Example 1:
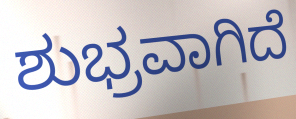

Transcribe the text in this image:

ಶುಭ್ರವಾಗಿದೆ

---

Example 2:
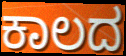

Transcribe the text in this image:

ಕಾಲದ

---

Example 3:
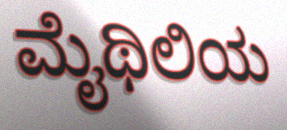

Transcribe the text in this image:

ಮೈಥಿಲಿಯ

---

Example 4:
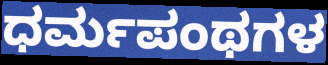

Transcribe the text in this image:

ಧರ್ಮಪಂಥಗಳ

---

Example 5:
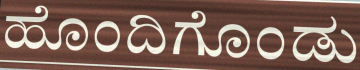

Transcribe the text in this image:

ಹೊಂದಿಗೊಂಡು